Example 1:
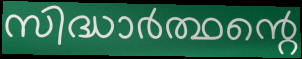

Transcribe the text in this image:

സിദ്ധാർത്ഥന്റെ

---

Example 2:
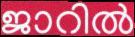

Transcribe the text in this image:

ജാറിൽ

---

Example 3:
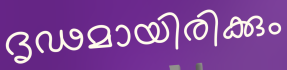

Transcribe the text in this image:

ദൃഢമായിരിക്കും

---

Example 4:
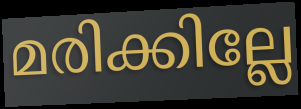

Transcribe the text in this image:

മരിക്കില്ലേ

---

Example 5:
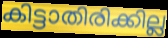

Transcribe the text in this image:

കിട്ടാതിരിക്കില്ല